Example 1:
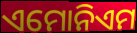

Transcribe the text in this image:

ଏମୋନିଏମ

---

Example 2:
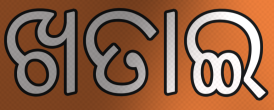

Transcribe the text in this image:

ଖତାଇ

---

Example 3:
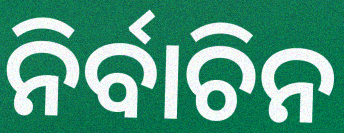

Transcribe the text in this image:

ନିର୍ବାଚିନ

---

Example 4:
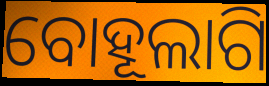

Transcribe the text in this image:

ବୋହୂଲାଗି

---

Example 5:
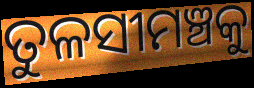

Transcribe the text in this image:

ତୁଳସୀମଞ୍ଚକୁ